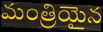
మంత్రియైన